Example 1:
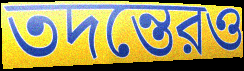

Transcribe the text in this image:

তদন্তেরও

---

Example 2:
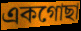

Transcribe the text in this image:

একগোছা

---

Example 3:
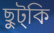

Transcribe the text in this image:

ছুট্কি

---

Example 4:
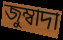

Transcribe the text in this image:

জুম্বাদা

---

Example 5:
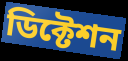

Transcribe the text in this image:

ডিক্টেশন